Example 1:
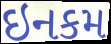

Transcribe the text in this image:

ઇનકમ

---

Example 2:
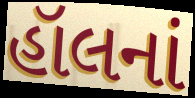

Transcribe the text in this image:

હૉલનાં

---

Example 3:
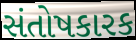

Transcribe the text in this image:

સંતોષકારક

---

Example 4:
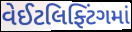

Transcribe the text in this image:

વેઈટલિફ્ટિંગમાં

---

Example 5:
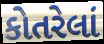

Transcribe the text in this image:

કોતરેલાં